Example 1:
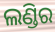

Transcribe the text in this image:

ଲଣ୍ଡିର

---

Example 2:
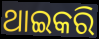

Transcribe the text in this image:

ଥାଇକରି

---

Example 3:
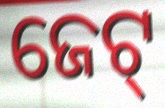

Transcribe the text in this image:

ଜେଟ୍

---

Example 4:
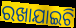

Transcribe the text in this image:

ରଖାଯାଇଚି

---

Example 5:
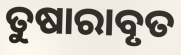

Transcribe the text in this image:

ତୁଷାରାବୃତ